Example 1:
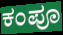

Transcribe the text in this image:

ಕಂಪೂ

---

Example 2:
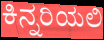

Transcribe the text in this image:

ಕಿನ್ನರಿಯಲಿ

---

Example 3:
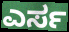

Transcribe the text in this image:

ಎರ್ಸ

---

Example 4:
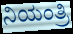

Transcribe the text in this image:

ನಿಯಂತ್ರಿ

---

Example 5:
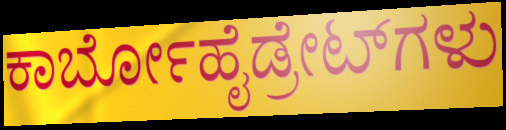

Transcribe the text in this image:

ಕಾರ್ಬೋಹೈಡ್ರೇಟ್‌ಗಳು